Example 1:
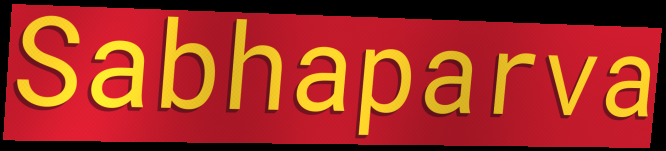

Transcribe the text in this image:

Sabhaparva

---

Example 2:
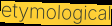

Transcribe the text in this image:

etymological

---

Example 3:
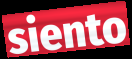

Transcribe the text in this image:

siento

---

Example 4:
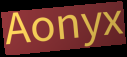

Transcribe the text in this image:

Aonyx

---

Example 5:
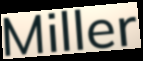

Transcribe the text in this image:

Miller